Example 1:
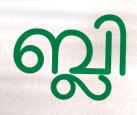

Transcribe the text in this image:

ബ്ലി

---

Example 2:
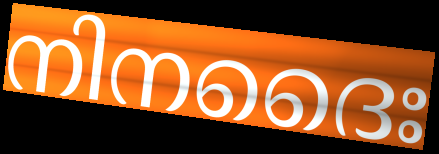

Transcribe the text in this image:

നിനദൈഃ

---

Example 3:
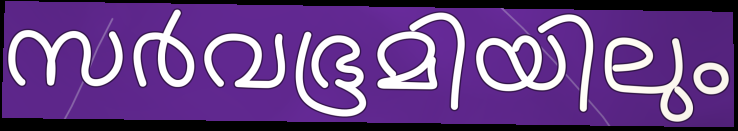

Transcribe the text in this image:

സർവഭൂമിയിലും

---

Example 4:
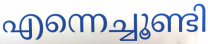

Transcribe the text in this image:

എന്നെച്ചൂണ്ടി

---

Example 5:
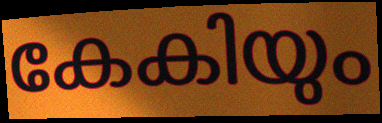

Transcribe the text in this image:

കേകിയും